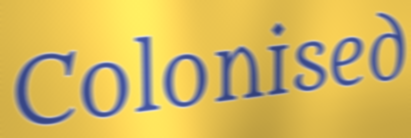
Colonised